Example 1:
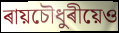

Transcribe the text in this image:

ৰায়চৌধুৰীয়েও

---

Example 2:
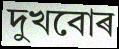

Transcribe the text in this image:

দুখবোৰ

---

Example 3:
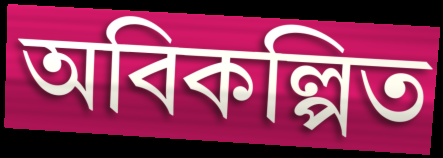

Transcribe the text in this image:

অবিকল্পিত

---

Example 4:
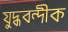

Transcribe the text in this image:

যুদ্ধবন্দীক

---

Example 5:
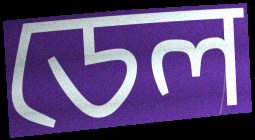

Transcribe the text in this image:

ডেল